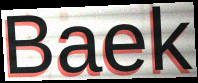
Baek